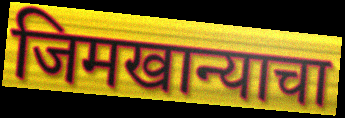
जिमखान्याचा